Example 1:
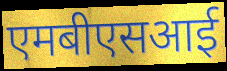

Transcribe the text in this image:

एमबीएसआई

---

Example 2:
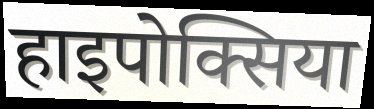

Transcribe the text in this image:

हाइपोक्सिया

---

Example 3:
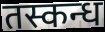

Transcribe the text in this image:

तस्कन्ध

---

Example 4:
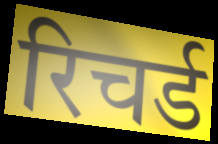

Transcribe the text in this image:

रिचर्ड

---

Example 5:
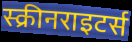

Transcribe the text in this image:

स्क्रीनराइटर्स